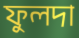
ফুলদা